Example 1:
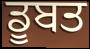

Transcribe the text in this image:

ਡੂਬਤ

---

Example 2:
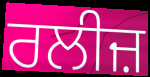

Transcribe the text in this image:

ਰਲੀਜ਼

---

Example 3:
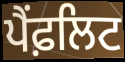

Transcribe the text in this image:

ਪੈਂਫ਼ਲਿਟ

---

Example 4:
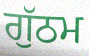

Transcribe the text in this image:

ਗੁੱਠਮ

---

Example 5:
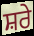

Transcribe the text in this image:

ਸ਼ਰੇ